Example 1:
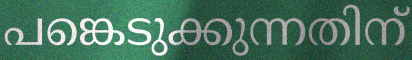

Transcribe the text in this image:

പങ്കെടുക്കുന്നതിന്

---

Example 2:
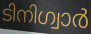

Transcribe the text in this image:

ടിനിഗ്വാർ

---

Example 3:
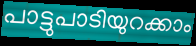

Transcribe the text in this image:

പാട്ടുപാടിയുറക്കാം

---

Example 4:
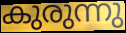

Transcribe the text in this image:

കുരുന്നു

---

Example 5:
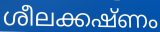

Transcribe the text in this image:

ശീലക്കഷ്ണം